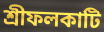
শ্রীফলকাটি